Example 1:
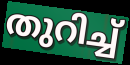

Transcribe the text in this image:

തുറിച്ച്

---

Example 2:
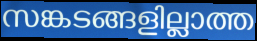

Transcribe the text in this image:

സങ്കടങ്ങളില്ലാത്ത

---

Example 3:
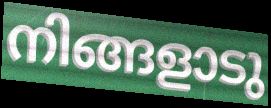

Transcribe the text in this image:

നിങ്ങളാടു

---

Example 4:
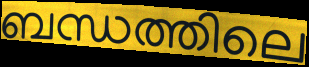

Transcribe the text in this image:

ബന്ധത്തിലെ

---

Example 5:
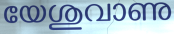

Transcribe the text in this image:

യേശുവാണു